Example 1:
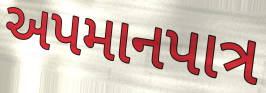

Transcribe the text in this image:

અપમાનપાત્ર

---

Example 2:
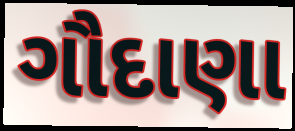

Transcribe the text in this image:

ગૌદાણા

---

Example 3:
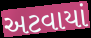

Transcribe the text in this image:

અટવાયાં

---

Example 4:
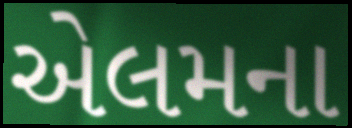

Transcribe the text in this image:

એલમના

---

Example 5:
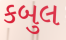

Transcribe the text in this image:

કબુલ